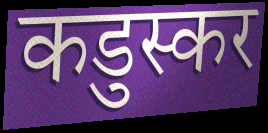
कडुस्कर